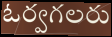
ఓర్వగలరు